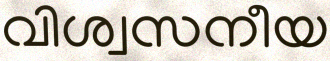
വിശ്വസനീയ